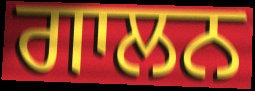
ਗਾਲਨ